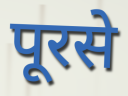
पूरसे